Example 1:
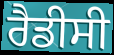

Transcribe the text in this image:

ਰੈਡੀਸੀ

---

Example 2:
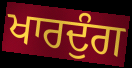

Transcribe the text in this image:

ਖਾਰਦੁੰਗ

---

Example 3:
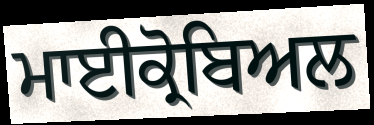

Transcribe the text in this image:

ਮਾਈਕ੍ਰੋਬਿਅਲ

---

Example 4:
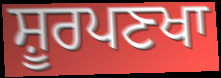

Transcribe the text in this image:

ਸ਼ੂਰਪਣਖਾ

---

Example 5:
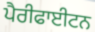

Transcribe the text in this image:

ਪੈਰੀਫਾਈਟਨ